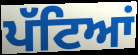
ਪੱਟਿਆਂ